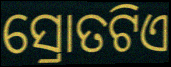
ସ୍ରୋତଟିଏ